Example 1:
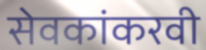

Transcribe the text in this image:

सेवकांकरवी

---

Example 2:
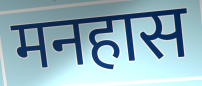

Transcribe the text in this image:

मनहास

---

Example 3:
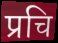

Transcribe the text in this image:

प्रचि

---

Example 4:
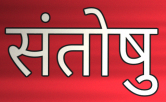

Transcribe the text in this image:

संतोषु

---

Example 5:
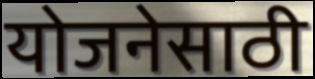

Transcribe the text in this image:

योजनेसाठी